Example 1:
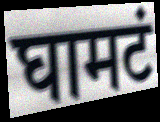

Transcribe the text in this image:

घामटं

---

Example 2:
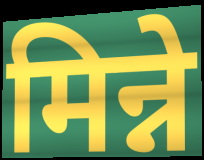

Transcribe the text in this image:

मिन्ने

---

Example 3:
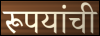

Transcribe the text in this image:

रूपयांची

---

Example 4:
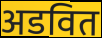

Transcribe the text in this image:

अडवित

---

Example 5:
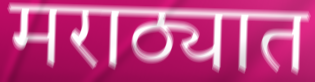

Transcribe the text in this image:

मराठ्यात